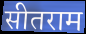
सीतराम